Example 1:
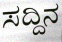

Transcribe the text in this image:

ಸದ್ದಿನ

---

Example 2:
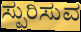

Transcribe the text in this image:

ಸ್ಪುರಿಸುವ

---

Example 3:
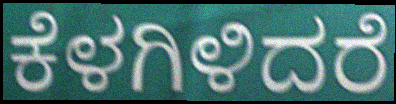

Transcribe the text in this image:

ಕೆಳಗಿಳಿದರೆ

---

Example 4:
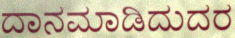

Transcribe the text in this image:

ದಾನಮಾಡಿದುದರ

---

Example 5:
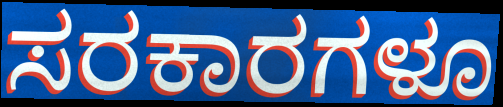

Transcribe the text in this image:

ಸರಕಾರಗಳೂ